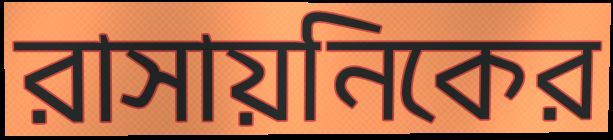
রাসায়নিকের